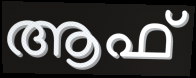
ആഫ്